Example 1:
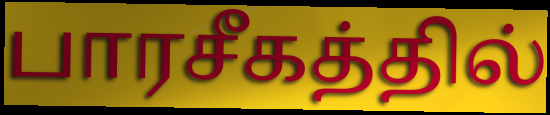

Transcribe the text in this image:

பாரசீகத்தில்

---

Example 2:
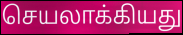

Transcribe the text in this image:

செயலாக்கியது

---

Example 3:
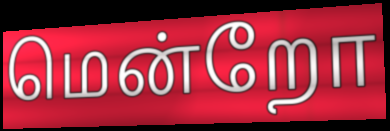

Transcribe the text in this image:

மென்றோ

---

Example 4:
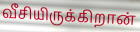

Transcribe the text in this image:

வீசியிருக்கிறான்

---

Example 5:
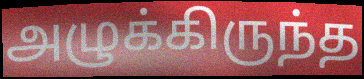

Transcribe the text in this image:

அழுக்கிருந்த